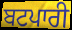
ਬਟਪਾਰੀ